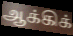
ஆக்கிக்